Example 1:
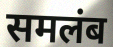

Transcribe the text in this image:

समलंब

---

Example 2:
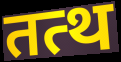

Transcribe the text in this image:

तत्थ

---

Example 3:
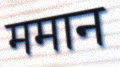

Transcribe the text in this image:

ममान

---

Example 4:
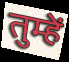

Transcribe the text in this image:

तुम्‍हें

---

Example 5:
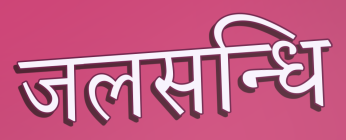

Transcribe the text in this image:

जलसन्धि